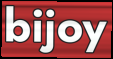
bijoy